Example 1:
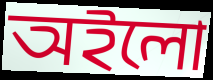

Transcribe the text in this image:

অইলো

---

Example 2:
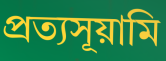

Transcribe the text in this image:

প্রত্যসূয়ামি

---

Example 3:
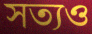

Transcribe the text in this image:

সত্যও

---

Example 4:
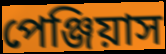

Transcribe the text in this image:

পেঞ্জিয়াস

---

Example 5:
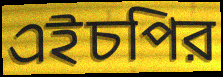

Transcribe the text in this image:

এইচপির